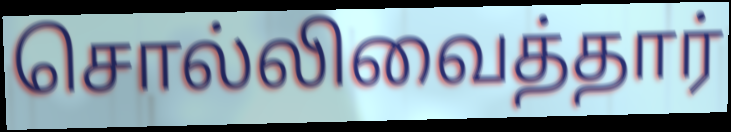
சொல்லிவைத்தார்